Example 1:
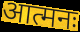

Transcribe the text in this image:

आत्मनः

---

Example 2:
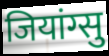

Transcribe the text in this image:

जियांग्सु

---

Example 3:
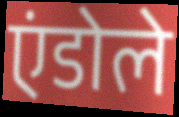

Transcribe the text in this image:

एंडोले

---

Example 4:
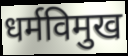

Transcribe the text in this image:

धर्मविमुख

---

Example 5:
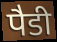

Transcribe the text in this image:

पैडी